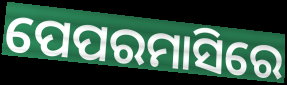
ପେପରମାସିରେ